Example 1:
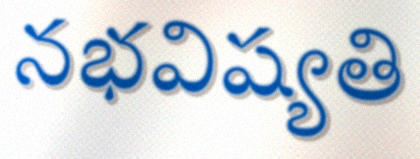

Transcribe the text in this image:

నభవిష్యతి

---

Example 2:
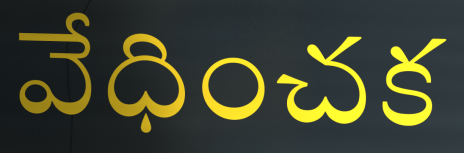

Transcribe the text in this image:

వేధించక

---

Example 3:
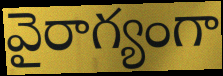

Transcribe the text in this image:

వైరాగ్యంగా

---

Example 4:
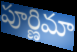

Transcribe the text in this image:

పూర్ణిమా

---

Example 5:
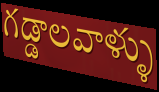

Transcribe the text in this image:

గడ్డాలవాళ్ళు